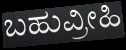
ಬಹುವ್ರೀಹಿ